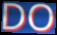
DO